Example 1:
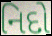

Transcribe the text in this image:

નિદો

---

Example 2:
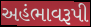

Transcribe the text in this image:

અહંભાવરૂપી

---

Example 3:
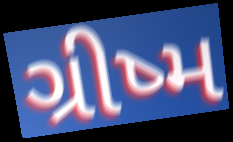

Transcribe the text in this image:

ગ્રીષ્મ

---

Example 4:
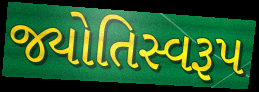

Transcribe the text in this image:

જ્યોતિસ્વરૂપ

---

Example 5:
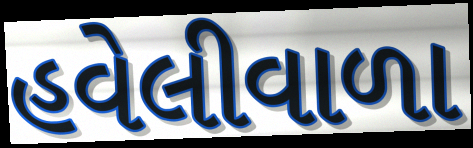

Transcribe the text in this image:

હવેલીવાળા